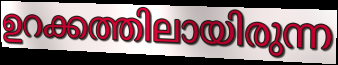
ഉറക്കത്തിലായിരുന്ന